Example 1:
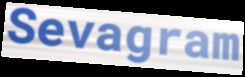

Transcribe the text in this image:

Sevagram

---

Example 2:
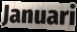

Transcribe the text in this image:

Januari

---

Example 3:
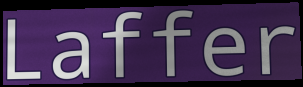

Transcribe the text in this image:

Laffer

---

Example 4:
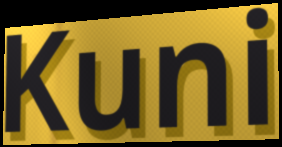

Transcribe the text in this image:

Kuni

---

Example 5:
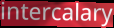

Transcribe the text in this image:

intercalary